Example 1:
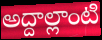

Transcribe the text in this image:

అద్దాల్లాంటి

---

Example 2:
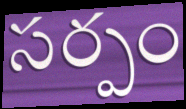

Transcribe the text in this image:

సర్పం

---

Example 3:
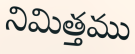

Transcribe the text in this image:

నిమిత్తము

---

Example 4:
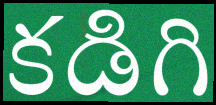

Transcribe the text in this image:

కడిగి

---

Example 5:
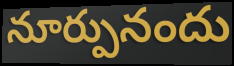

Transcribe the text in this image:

నూర్పునందు